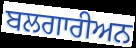
ਬਲਗਾਰੀਅਨ